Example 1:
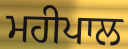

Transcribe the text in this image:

ਮਹੀਪਾਲ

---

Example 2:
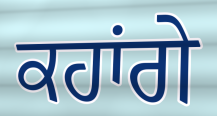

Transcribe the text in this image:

ਕਹਾਂਗੇ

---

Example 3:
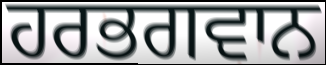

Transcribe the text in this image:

ਹਰਭਗਵਾਨ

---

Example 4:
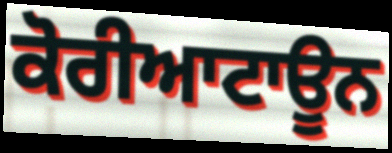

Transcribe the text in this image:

ਕੋਰੀਆਟਾਊਨ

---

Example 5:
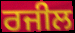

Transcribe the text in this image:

ਰਜੀਲ